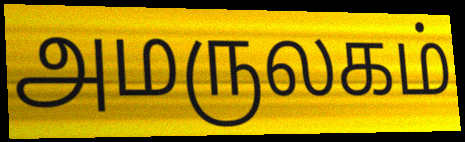
அமருலகம்